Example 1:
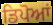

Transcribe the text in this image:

ਡਿਪੋਆਂ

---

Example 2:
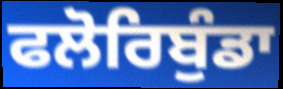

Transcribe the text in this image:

ਫਲੋਰਿਬੁੰਡਾ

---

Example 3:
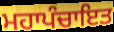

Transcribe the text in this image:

ਮਹਾਪੰਚਾਇਤ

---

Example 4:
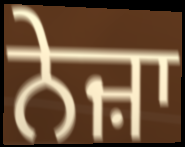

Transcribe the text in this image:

ਨੇਜ਼ਾ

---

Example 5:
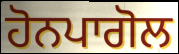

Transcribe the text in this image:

ਹੋਨਪਾਗੋਲ